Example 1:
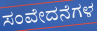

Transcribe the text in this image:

ಸಂವೇದನೆಗಳ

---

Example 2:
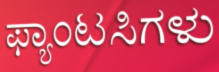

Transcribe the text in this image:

ಫ್ಯಾಂಟಸಿಗಳು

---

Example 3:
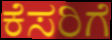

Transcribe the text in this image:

ಕೆಸರಿಗೆ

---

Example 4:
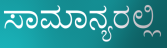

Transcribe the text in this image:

ಸಾಮಾನ್ಯರಲ್ಲಿ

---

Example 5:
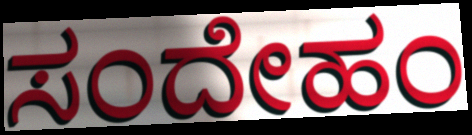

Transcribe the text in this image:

ಸಂದೇಹಂ